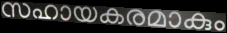
സഹായകരമാകും